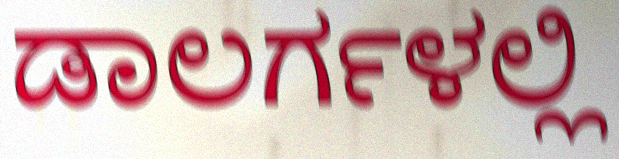
ಡಾಲರ್ಗಳಲ್ಲಿ